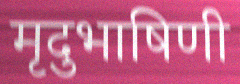
मृदुभाषिणी